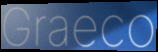
Graeco